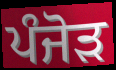
ਪੰਜੋੜ